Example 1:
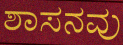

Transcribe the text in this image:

ಶಾಸನವು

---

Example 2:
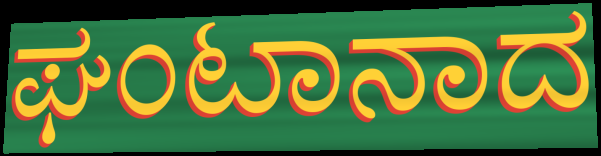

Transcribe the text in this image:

ಘಂಟಾನಾದ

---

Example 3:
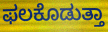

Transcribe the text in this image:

ಫಲಕೊಡುತ್ತಾ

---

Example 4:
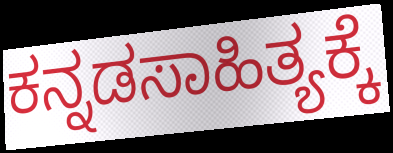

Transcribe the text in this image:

ಕನ್ನಡಸಾಹಿತ್ಯಕ್ಕೆ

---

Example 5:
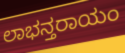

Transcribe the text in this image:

ಲಾಭನ್ತರಾಯಂ